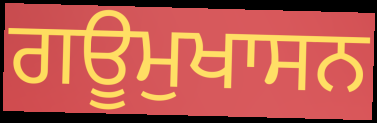
ਗਊਮੁਖਾਸਨ